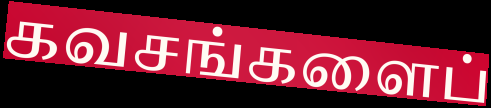
கவசங்களைப்